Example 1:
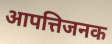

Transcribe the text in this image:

आपत्तिजनक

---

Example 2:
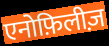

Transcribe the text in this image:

एनोफ़िलीज़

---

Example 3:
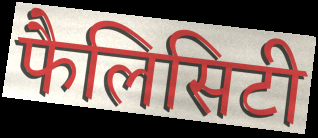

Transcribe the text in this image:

फैलिसिटी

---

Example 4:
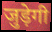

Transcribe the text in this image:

जुड़ेगी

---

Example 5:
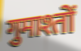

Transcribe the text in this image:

गुमाश्तों